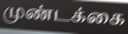
முண்டக்கை